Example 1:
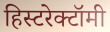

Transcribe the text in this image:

हिस्टरेक्टॉमी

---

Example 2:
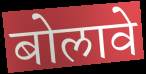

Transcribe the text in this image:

बोलावे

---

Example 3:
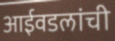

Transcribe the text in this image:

आईवडलांची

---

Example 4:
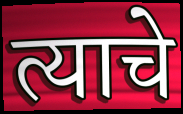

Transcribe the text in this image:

त्याचे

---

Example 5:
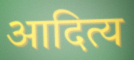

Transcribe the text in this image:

आदित्य